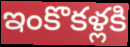
ఇంకొకళ్లకి